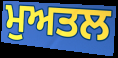
ਮੁਅਤਲ